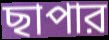
ছাপার